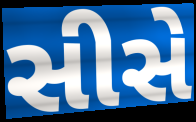
સીસે